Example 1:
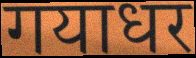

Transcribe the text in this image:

गयाधर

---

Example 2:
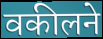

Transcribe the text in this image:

वकीलने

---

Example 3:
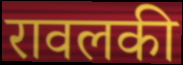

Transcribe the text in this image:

रावलकी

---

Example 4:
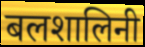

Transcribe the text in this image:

बलशालिनी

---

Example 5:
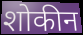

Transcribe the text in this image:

शोकीन